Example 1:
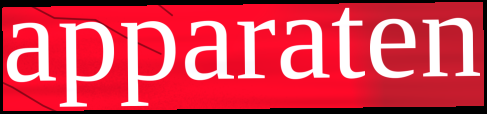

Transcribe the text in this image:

apparaten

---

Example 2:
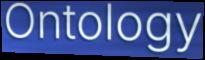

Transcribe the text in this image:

Ontology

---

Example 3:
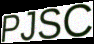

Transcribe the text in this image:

PJSC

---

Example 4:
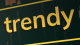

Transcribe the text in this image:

trendy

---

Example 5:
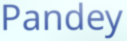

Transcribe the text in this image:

Pandey